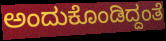
ಅಂದುಕೊಂಡಿದ್ದಂತೆ